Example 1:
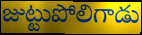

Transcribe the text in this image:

జుట్టుపోలిగాడు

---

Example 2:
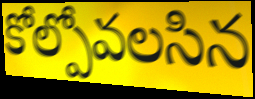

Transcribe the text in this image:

కోల్పోవలసిన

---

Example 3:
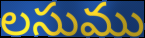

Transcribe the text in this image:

లసుము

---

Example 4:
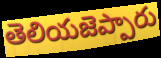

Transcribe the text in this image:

తెలియజెప్పారు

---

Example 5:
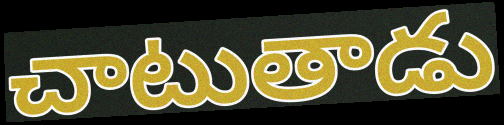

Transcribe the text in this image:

చాటుతాడు